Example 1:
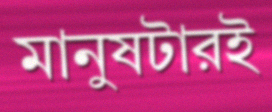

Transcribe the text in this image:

মানুষটারই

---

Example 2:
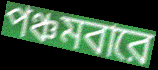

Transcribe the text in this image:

পঞ্চমবারে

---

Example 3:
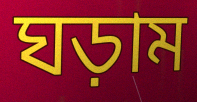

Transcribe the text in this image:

ঘড়াম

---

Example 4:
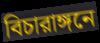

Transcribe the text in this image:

বিচারাঙ্গনে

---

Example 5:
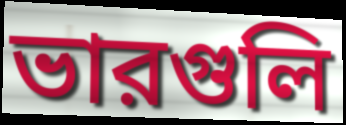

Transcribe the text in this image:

ভারগুলি